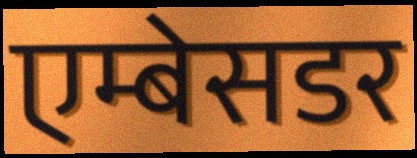
एम्‍बेसडर